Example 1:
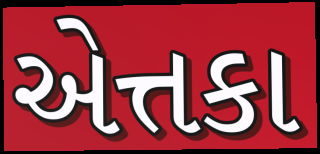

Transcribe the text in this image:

એત્તકા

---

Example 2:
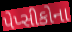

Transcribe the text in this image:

પેપ્સીકોના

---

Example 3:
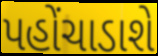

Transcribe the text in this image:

પહોંચાડાશે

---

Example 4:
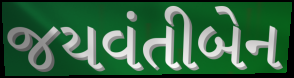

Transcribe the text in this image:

જયવંતીબેન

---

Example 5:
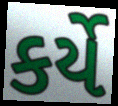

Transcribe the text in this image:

કર્યે